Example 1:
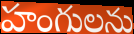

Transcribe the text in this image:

హంగులను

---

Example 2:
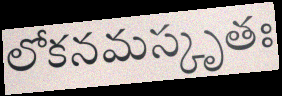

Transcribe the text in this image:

లోకనమస్కృతః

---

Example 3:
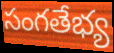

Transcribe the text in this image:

సంగతేభ్య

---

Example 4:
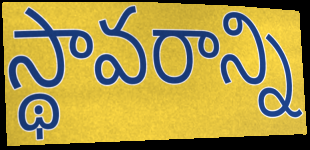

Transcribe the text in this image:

స్థావరాన్ని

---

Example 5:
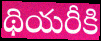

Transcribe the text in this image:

థియరీకి